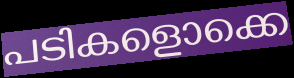
പടികളൊക്കെ